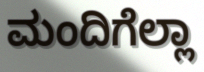
ಮಂದಿಗೆಲ್ಲಾ